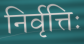
निर्वृत्तिः